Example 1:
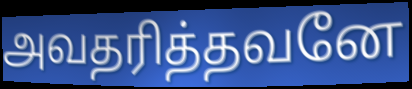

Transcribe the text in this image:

அவதரித்தவனே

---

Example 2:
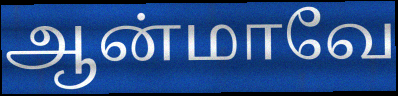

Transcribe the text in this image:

ஆன்மாவே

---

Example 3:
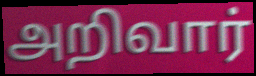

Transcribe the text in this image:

அறிவார்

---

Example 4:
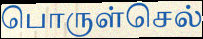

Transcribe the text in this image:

பொருள்செல்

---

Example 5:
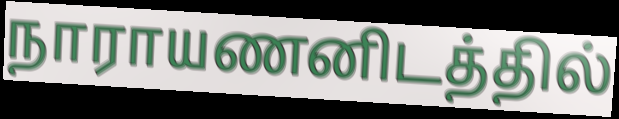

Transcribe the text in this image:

நாராயணனிடத்தில்